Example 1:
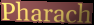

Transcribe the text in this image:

Pharach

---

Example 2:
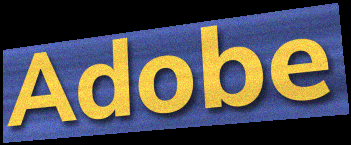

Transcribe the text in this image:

Adobe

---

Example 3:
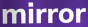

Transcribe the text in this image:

mirror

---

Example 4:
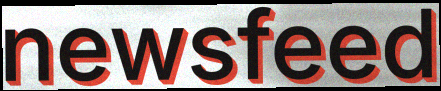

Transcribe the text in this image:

newsfeed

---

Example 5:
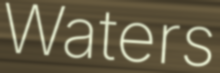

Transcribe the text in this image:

Waters